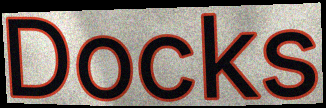
Docks